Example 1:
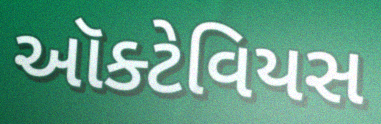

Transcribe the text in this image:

ઑક્ટેવિયસ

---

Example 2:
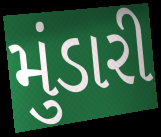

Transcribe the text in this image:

મુંડારી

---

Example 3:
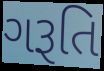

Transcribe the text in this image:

ગરૂતિ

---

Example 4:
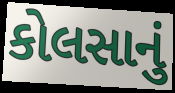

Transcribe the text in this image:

કોલસાનું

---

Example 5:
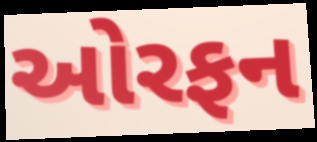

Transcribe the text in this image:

ઓરફન